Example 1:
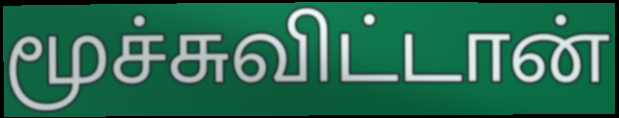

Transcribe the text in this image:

மூச்சுவிட்டான்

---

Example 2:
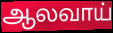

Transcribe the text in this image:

ஆலவாய்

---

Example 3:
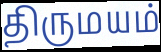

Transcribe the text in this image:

திருமயம்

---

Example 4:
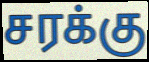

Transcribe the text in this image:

சரக்கு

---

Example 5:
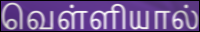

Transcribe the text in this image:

வெள்ளியால்